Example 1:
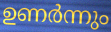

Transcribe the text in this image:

ഉണർന്നും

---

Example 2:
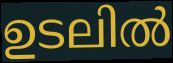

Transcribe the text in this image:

ഉടലിൽ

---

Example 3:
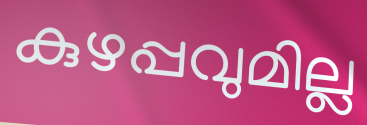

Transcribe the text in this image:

കുഴപ്പവുമില്ല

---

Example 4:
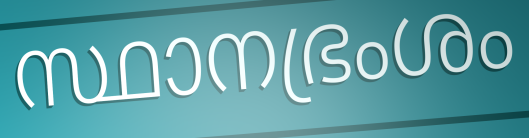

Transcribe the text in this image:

സ്ഥാനഭ്രംശം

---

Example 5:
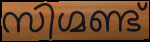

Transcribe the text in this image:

സിഗ്മണ്ട്